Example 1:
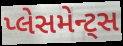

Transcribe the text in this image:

પ્લેસમેન્ટ્સ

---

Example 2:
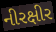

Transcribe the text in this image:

નીરક્ષીર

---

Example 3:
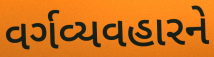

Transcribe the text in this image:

વર્ગવ્યવહારને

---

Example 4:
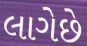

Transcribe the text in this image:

લાગેછે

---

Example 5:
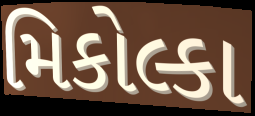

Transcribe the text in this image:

મિકોલ્કા